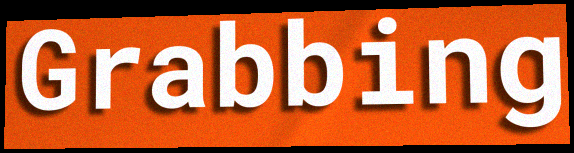
Grabbing